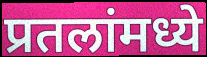
प्रतलांमध्ये